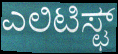
ಎಲಿಟಿಸ್ಟ್